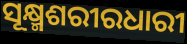
ସୂକ୍ଷ୍ମଶରୀରଧାରୀ